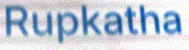
Rupkatha